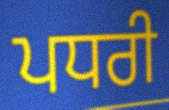
ਪਧਰੀ